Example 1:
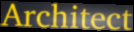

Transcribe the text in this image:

Architect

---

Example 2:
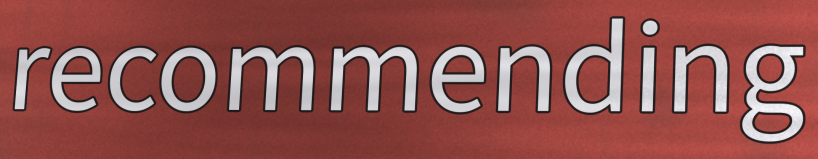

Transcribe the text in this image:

recommending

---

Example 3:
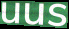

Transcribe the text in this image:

uus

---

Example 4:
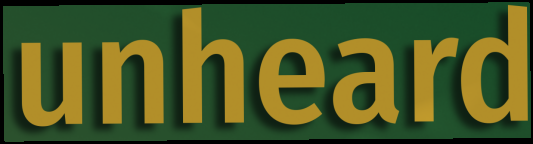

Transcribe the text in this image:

unheard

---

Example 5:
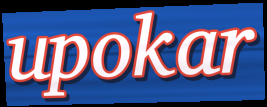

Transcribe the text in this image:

upokar